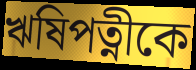
ঋষিপত্নীকে